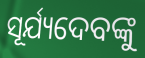
ସୂର୍ଯ୍ୟଦେବଙ୍କୁ